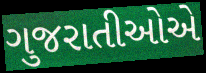
ગુજરાતીઓએ